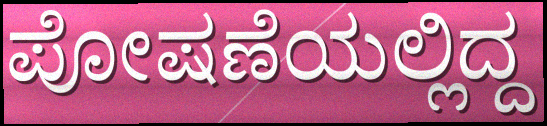
ಪೋಷಣೆಯಲ್ಲಿದ್ದ